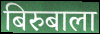
बिरुबाला